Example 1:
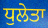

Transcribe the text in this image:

ਧੁਲੇਤਾ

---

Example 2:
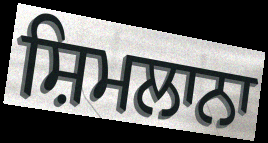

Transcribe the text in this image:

ਸ਼ਿਮਲਾਨਾ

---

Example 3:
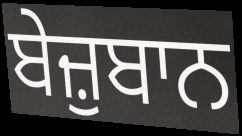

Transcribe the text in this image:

ਬੇਜ਼ੁਬਾਨ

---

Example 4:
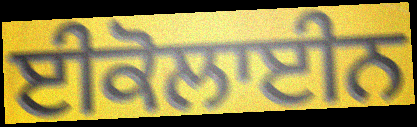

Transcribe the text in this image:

ਈਕੋਲਾਈਨ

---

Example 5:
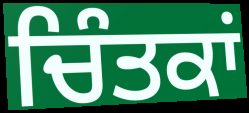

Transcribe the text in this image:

ਚਿੰਤਕਾਂ